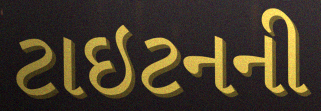
ટાઇટનની